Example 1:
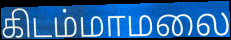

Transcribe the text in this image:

கிடம்மாமலை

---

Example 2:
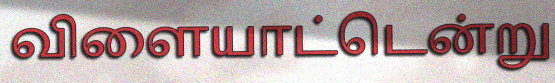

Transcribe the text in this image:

விளையாட்டென்று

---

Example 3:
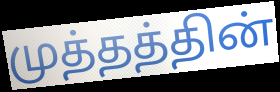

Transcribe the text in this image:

முத்தத்தின்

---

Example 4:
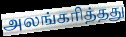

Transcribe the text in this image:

அலங்கரித்தது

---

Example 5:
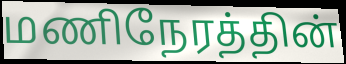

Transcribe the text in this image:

மணிநேரத்தின்